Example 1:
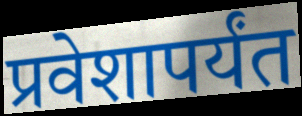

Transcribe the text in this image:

प्रवेशापर्यंत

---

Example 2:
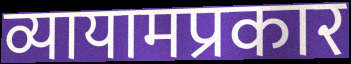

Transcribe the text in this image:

व्यायामप्रकार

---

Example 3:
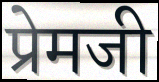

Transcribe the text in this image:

प्रेमजी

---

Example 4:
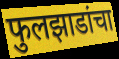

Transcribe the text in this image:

फुलझाडांचा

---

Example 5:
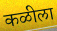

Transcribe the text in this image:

कळीला